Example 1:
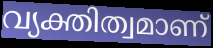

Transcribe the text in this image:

വ്യക്തിത്വമാണ്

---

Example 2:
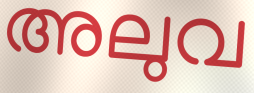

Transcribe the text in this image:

അലുവ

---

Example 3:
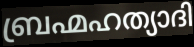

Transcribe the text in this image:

ബ്രഹ്മഹത്യാദി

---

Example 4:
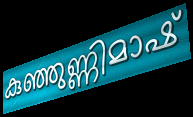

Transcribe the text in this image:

കുഞ്ഞുണ്ണിമാഷ്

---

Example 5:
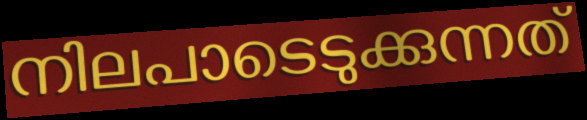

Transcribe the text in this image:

നിലപാടെടുക്കുന്നത്